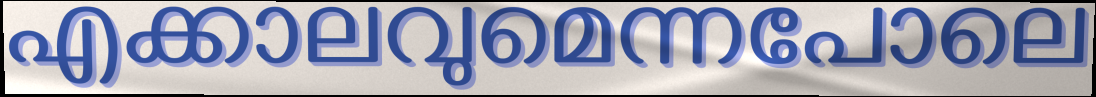
എക്കാലവുമെന്നപോലെ